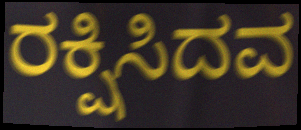
ರಕ್ಷಿಸಿದವ